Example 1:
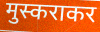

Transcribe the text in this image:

मुस्कराकर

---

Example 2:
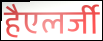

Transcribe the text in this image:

हैएलर्जी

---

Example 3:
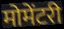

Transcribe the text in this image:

मोमेंटरी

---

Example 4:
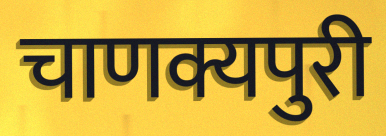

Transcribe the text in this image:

चाणक्यपुरी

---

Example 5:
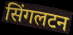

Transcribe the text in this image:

सिंगलटन